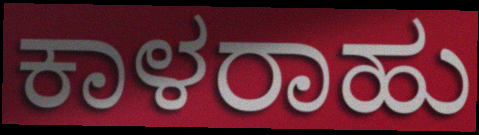
ಕಾಳರಾಹು